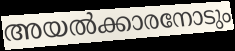
അയൽക്കാരനോടും